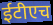
ईटीएच